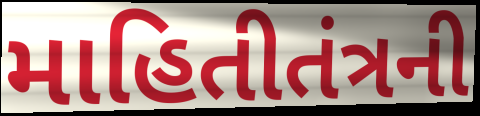
માહિતીતંત્રની